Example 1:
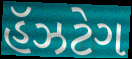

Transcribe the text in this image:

હૅઝટેગ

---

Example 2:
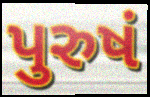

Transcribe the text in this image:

પુરુષં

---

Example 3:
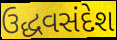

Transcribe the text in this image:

ઉદ્ધવસંદેશ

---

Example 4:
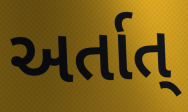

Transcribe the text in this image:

અર્તાત્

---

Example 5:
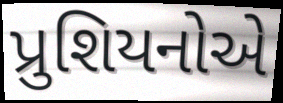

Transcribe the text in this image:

પ્રુશિયનોએ